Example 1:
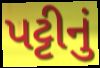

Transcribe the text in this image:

પટ્ટીનું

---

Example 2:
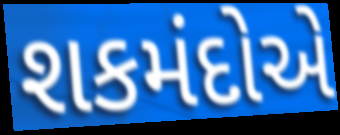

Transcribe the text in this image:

શકમંદોએ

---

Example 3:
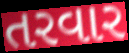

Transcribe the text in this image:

તરવાર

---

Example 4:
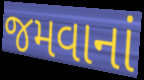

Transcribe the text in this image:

જમવાનાં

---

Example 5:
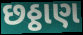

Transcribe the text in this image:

છઠ્ઠાણ